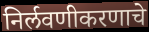
निर्लवणीकरणाचे